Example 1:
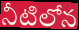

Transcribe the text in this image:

నీటిలోన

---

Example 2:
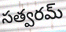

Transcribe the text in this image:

సత్వరమ్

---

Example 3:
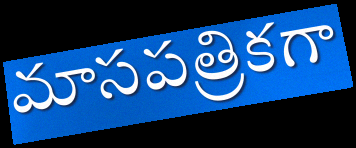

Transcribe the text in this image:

మాసపత్రికగా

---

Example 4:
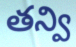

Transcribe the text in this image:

తన్వి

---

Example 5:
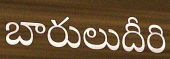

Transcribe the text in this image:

బారులుదీరి